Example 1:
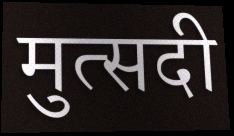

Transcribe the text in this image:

मुत्सदी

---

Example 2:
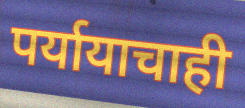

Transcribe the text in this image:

पर्यायाचाही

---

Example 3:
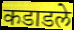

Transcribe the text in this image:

कडाडले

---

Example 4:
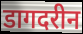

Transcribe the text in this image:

डागदरीन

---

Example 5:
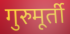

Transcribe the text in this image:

गुरुमूर्ती